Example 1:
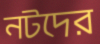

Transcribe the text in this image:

নটদের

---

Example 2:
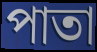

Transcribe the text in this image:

পাতা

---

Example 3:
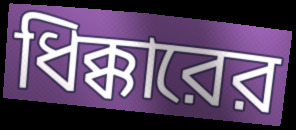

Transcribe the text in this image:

ধিক্কারের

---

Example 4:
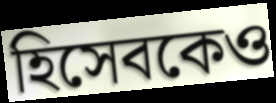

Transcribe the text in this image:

হিসেবকেও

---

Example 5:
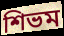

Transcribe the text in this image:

শিভম